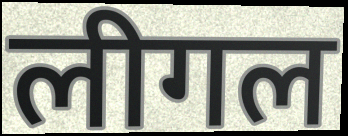
लीगल